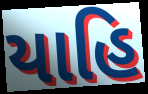
યાહિ